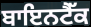
ਬਾਇਨਟੈੱਕ